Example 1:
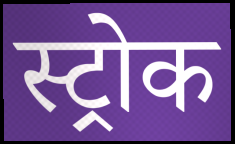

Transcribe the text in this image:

स्ट्रोक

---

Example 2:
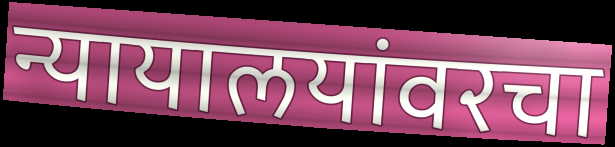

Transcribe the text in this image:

न्यायालयांवरचा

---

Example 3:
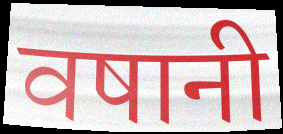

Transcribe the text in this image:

वषानी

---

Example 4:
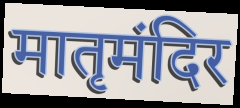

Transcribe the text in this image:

मातृमंदिर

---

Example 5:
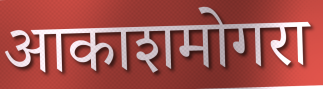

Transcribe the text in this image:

आकाशमोगरा